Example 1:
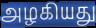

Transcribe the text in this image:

அழகியது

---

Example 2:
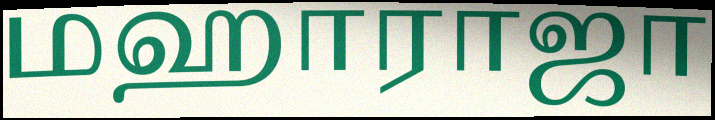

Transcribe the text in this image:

மஹாராஜா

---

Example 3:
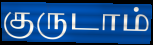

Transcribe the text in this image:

குருடாம்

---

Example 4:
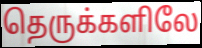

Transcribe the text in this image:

தெருக்களிலே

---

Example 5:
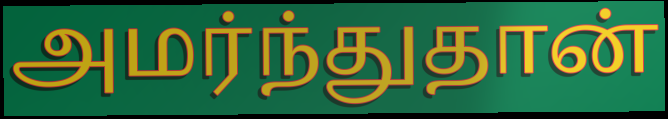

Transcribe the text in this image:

அமர்ந்துதான்